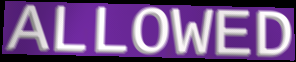
ALLOWED